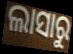
ଲାସାରୁ